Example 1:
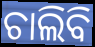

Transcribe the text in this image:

ଚାଲିବି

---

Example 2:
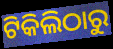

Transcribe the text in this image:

ଟିକିଲିଠାରୁ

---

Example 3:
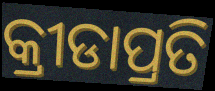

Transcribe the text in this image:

କ୍ରୀଡାପ୍ରତି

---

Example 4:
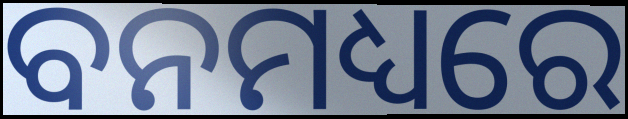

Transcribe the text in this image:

ବନମଧ୍ୟରେ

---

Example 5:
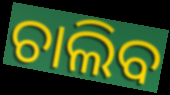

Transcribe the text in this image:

ଚାଲିବ